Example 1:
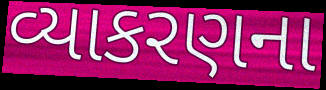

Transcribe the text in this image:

વ્યાકરણના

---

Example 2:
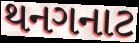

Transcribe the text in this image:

થનગનાટ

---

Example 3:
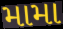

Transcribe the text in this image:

મામા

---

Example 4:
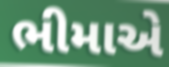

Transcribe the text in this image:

ભીમાએ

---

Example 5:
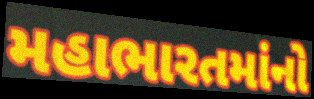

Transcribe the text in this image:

મહાભારતમાંનો